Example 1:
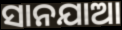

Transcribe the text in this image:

ସାନଯାଆ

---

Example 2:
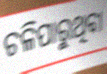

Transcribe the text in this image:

ଚଳିପାରୁଥିବା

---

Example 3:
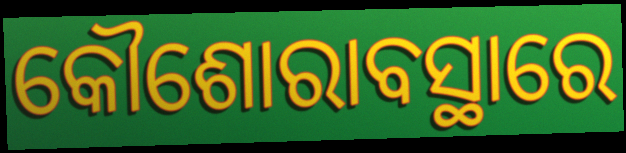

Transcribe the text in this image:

କୌଶୋରାବସ୍ଥାରେ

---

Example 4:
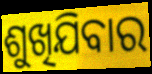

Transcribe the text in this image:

ଶୁଖିଯିବାର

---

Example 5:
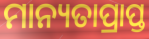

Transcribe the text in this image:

ମାନ୍ୟତାପ୍ରାପ୍ତ